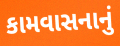
કામવાસનાનું